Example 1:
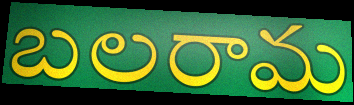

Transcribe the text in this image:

బలరామ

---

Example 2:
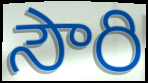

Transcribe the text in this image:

సౌరి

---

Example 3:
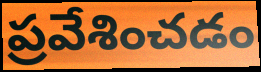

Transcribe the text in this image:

ప్రవేశించడం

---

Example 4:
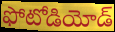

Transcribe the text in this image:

ఫోటోడియోడ్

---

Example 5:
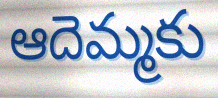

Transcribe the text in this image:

ఆదెమ్మకు